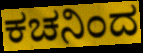
ಕಚನಿಂದ